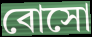
বোসো